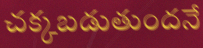
చక్కబడుతుందనే